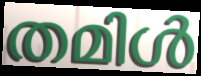
തമിൾ